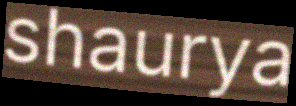
shaurya